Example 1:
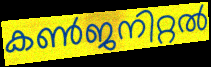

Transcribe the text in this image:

കൺജനിറ്റൽ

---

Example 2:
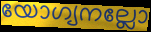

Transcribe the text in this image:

യോഗ്യനല്ലോ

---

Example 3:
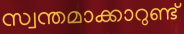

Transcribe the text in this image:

സ്വന്തമാക്കാറുണ്ട്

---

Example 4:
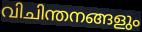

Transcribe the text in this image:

വിചിന്തനങ്ങളും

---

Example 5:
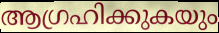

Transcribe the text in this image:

ആഗ്രഹിക്കുകയും